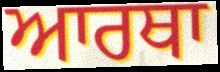
ਆਰਥਾ